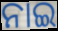
ନାଇ